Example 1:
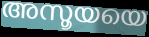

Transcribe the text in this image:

അസൂയയെ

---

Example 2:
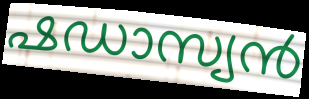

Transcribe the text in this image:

ഷഡാസ്യൻ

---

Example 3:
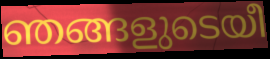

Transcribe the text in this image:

ഞങ്ങളുടെയീ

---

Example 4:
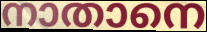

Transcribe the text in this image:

നാതാനെ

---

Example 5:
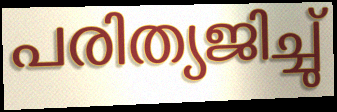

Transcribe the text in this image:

പരിത്യജിച്ചു്